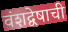
वंशद्वेषाची